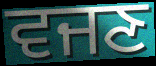
ਵਜਣ